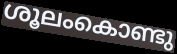
ശൂലംകൊണ്ടു